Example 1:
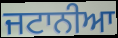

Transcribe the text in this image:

ਜਟਾਨੀਆ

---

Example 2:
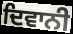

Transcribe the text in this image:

ਦਿਵਾਨੀ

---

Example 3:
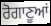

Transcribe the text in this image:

ਰੋਗਾਣੂਆਂ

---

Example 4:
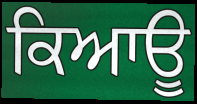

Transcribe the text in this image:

ਕਿਆਊ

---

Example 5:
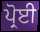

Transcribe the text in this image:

ਪ੍ਰੋਈ